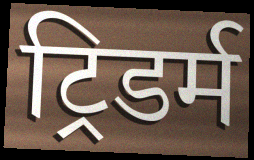
ट्रिडर्म